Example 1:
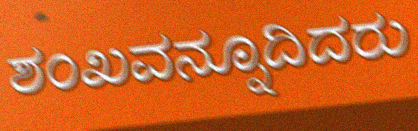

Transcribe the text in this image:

ಶಂಖವನ್ನೂದಿದರು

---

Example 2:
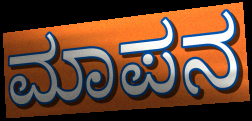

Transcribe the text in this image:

ಮಾಪನ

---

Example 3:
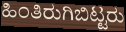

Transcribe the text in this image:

ಹಿಂತಿರುಗಿಬಿಟ್ಟರು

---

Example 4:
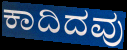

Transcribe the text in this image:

ಕಾದಿದವು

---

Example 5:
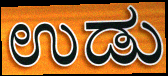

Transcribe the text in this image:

ಉಡು